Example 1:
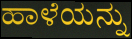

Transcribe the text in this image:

ಹಾಳೆಯನ್ನು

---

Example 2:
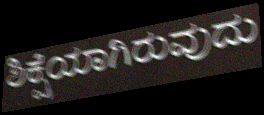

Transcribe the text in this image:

ಶಿಕ್ಷೆಯಾಗಿರುವುದು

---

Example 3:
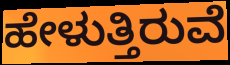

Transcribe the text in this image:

ಹೇಳುತ್ತಿರುವೆ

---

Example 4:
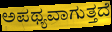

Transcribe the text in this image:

ಅಪಥ್ಯವಾಗುತ್ತದೆ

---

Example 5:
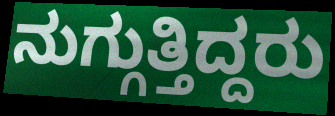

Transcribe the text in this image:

ನುಗ್ಗುತ್ತಿದ್ದರು